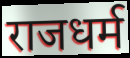
राजधर्म